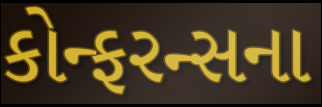
કોન્ફરન્સના